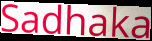
Sadhaka